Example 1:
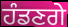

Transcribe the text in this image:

ਹੰਡਣਗੇ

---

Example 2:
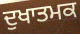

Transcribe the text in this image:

ਦੁਖਾਤਮਕ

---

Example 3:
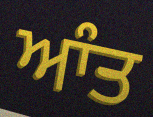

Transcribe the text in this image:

ਆੰਤ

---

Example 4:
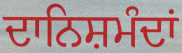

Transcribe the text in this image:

ਦਾਨਿਸ਼ਮੰਦਾਂ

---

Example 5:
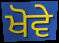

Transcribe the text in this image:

ਖੋਵੇ